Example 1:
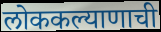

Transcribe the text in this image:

लोककल्याणाची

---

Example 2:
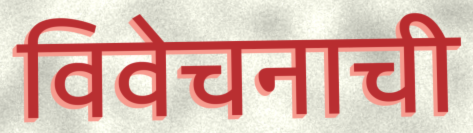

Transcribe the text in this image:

विवेचनाची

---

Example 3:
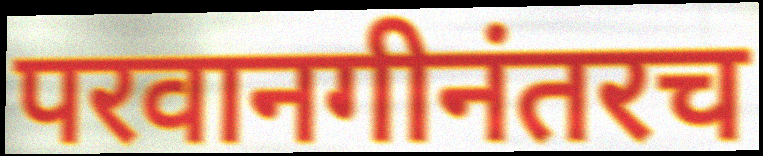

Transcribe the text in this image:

परवानगीनंतरच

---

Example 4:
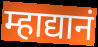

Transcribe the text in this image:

म्हाद्यानं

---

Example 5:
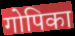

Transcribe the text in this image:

गोपिका